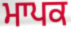
ਮਾਪਕ